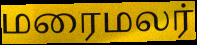
மரைமலர்